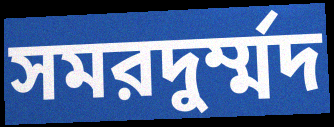
সমরদুর্ম্মদ